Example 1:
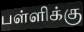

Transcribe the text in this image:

பள்ளிக்கு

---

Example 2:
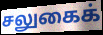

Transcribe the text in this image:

சலுகைக்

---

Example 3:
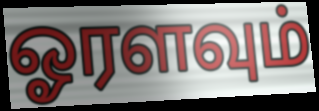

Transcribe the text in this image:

ஓரளவும்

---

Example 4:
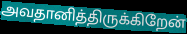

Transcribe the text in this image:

அவதானித்திருக்கிறேன்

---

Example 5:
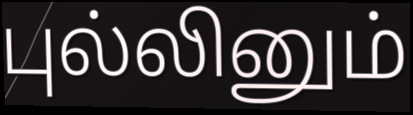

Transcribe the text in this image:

புல்லினும்